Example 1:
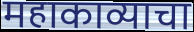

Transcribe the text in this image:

महाकाव्याचा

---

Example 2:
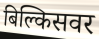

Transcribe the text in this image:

बिल्किसवर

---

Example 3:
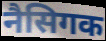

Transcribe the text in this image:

नैसिगक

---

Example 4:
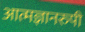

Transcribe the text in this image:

आत्मज्ञानरुपी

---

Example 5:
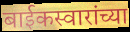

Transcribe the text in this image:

बाईकस्वारांच्या